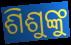
ଶିଶୁଙ୍କୁ